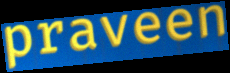
praveen